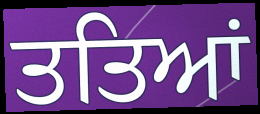
ਤਤਿਆਂ